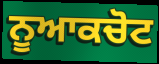
ਨੂਆਕਚੋਟ